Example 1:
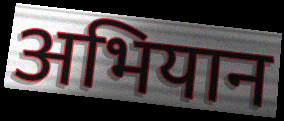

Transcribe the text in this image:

अभियान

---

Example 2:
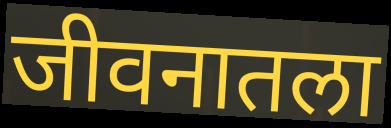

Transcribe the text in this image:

जीवनातला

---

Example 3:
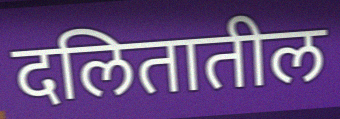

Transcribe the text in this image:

दलितातील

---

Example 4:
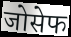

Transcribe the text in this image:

जोसेफ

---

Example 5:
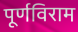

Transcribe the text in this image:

पूर्णविराम